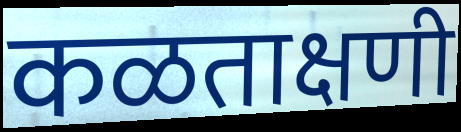
कळताक्षणी